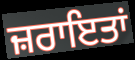
ਜ਼ਰਾਇਤਾਂ